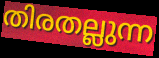
തിരതല്ലുന്ന